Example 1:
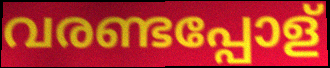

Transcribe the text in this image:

വരണ്ടപ്പോള്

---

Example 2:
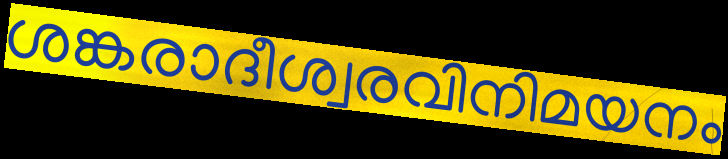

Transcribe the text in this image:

ശങ്കരാദീശ്വരവിനിമയനം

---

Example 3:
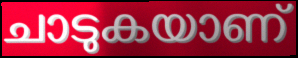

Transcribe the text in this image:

ചാടുകയാണ്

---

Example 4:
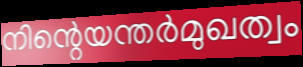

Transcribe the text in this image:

നിന്റെയന്തർമുഖത്വം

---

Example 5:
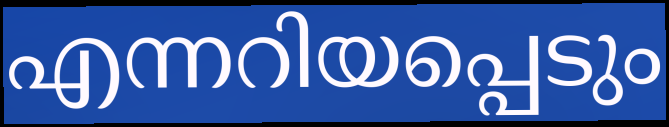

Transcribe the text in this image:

എന്നറിയപ്പെടും